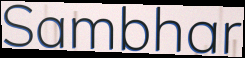
Sambhar